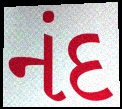
નંદ